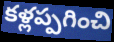
కళ్లప్పగించి